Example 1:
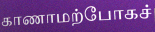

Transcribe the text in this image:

காணாமற்போகச்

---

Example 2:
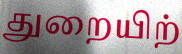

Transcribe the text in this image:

துறையிற்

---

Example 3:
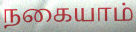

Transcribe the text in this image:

நகையாம்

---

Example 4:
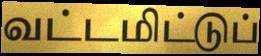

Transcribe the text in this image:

வட்டமிட்டுப்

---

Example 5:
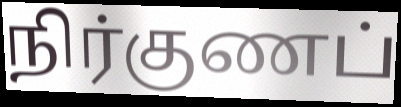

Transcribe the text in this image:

நிர்குணப்